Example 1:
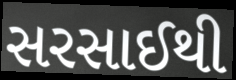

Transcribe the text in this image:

સરસાઈથી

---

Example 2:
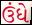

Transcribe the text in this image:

ઉંધે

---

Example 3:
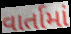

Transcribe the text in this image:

વાર્તામાં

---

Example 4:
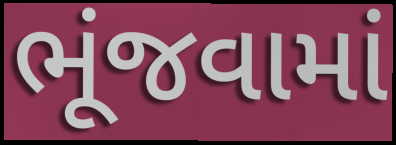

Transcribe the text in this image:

ભૂંજવામાં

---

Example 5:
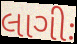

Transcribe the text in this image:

લાગીઃ